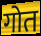
गोत